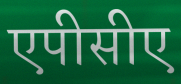
एपीसीए